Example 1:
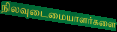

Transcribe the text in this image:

நிலவுடைமையாளர்களை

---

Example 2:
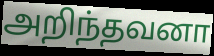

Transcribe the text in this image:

அறிந்தவனா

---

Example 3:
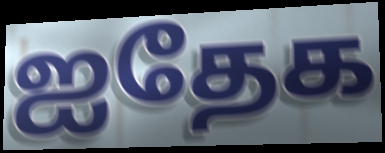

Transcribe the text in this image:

ஐதேக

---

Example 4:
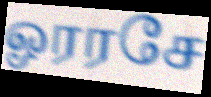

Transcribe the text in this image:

ஓரரசே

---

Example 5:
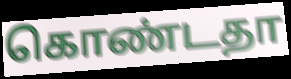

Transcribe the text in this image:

கொண்டதா